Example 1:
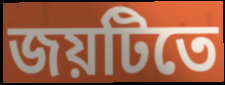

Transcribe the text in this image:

জয়টিতে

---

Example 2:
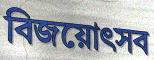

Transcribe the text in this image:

বিজয়োৎসব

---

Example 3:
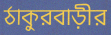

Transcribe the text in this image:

ঠাকুরবাড়ীর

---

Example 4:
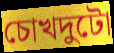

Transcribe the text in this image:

চোখদুটো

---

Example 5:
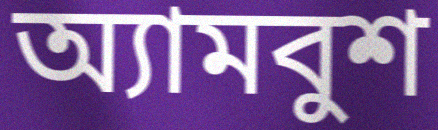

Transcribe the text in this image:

অ্যামবুশ